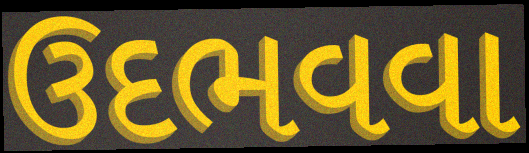
ઉદભવવા